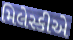
મિલેસ્કીએ